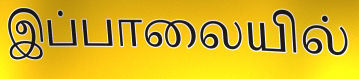
இப்பாலையில்